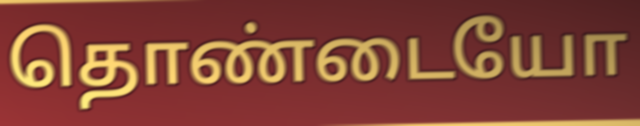
தொண்டையோ